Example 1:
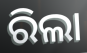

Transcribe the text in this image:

ରିଲା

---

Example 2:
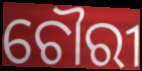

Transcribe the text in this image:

ଚୌରୀ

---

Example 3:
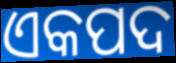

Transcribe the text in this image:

ଏକପଦ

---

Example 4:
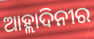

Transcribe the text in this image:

ଆହ୍ଲାଦିନୀର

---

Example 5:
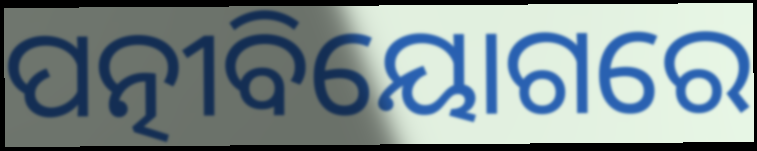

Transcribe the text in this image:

ପତ୍ନୀବିୟୋଗରେ